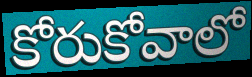
కోరుకోవాలో